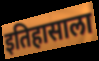
इतिहासाला